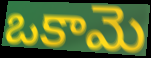
ఒకామె